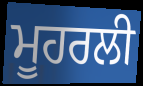
ਮੂਹਰਲੀ